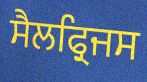
ਸੈਲਫ੍ਰਿਜਸ